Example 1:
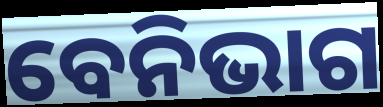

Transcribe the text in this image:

ବେନିଭାଗ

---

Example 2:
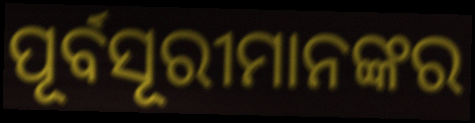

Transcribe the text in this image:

ପୂର୍ବସୂରୀମାନଙ୍କର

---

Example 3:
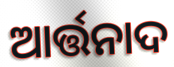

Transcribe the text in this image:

ଆର୍ତ୍ତନାଦ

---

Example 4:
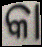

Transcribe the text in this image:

କା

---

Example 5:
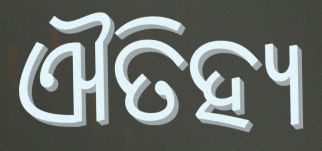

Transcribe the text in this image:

ଐତିହ୍ୟ